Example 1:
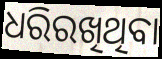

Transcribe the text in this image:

ଧରିରଖିଥିବା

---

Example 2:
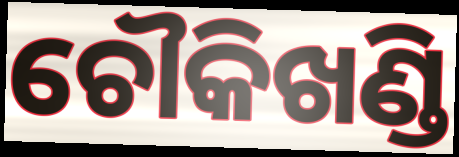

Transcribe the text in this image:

ଚୌକିଖଣ୍ଡି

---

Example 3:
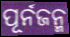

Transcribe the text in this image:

ପୂର୍ନଜନ୍ମ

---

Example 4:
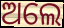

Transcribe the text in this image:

ଅଲେ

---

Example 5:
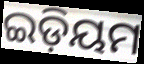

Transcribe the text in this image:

ଇଡ଼ିୟମ